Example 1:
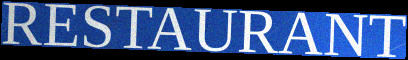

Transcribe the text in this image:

RESTAURANT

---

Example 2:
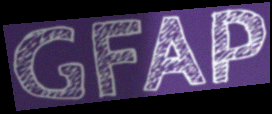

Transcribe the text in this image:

GFAP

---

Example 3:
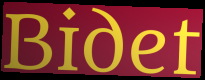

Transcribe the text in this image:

Bidet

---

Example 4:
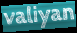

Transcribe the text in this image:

valiyan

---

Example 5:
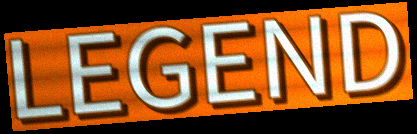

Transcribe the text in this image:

LEGEND